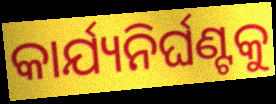
କାର୍ଯ୍ୟନିର୍ଘଣ୍ଟକୁ